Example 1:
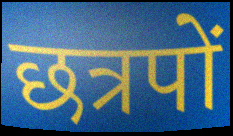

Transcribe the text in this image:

छत्रपों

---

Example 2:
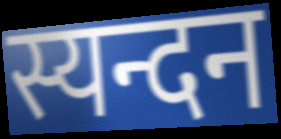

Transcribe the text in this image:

स्यन्दन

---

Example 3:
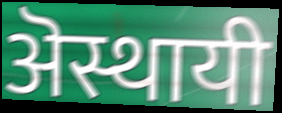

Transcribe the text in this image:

ऄस्थायी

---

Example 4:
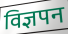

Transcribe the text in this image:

विज्ञपन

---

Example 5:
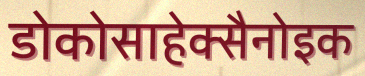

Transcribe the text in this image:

डोकोसाहेक्सैनोइक